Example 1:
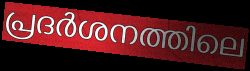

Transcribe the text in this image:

പ്രദർശനത്തിലെ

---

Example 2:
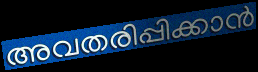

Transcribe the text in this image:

അവതരിപ്പിക്കാൻ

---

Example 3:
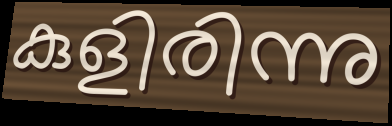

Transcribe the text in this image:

കുളിരിന്നു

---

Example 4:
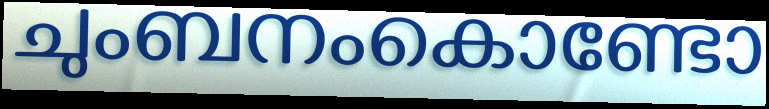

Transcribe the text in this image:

ചുംബനംകൊണ്ടോ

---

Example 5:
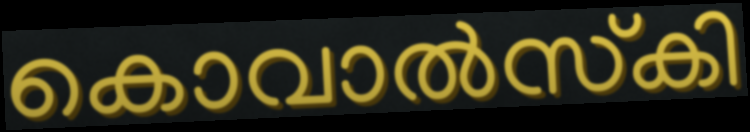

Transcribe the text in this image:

കൊവാൽസ്‌കി